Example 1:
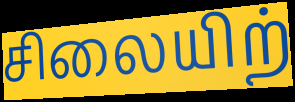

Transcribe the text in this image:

சிலையிற்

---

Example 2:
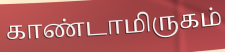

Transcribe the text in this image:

காண்டாமிருகம்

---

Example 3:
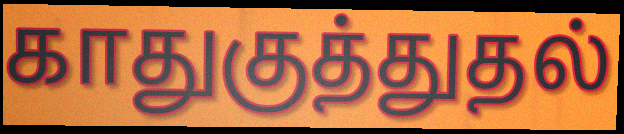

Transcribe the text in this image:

காதுகுத்துதல்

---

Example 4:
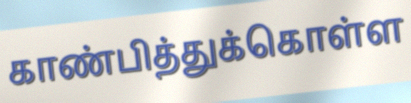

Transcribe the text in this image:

காண்பித்துக்கொள்ள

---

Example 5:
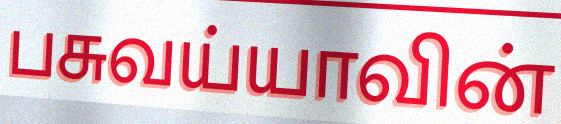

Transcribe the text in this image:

பசுவய்யாவின்